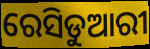
ରେସିଡୁଆରୀ